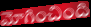
మోగించింది